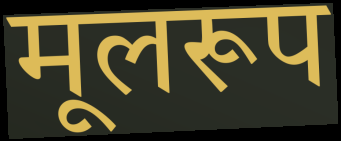
मूलरूप